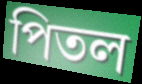
পিতল